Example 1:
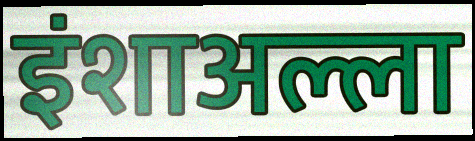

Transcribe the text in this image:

इंशाअल्ला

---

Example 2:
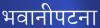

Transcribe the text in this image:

भवानीपटना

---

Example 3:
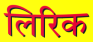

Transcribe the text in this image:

लिरिक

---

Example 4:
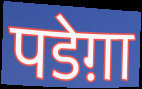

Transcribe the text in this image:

पडेग़ा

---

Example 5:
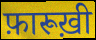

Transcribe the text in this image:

फ़ारूख़ी